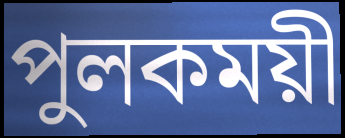
পুলকময়ী